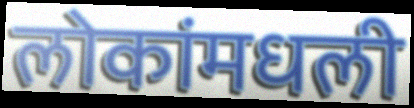
लोकांमधली